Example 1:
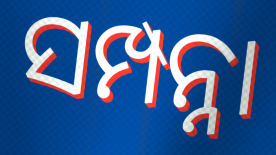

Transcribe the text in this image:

ସମ୍ପନ୍ନା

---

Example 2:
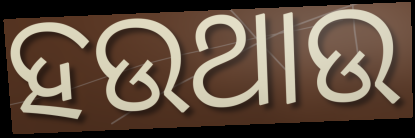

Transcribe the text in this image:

ହଉଥାଉ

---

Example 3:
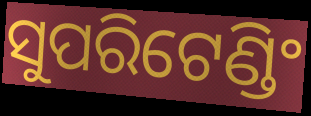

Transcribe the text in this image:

ସୁପରିଟେଣ୍ଡିଂ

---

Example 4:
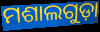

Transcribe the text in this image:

ମଶାଲଗୁଡ଼ା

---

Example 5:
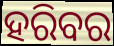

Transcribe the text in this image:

ହରିବର